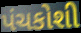
પંચકોશી